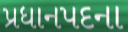
પ્રધાનપદના